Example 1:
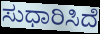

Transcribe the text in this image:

ಸುಧಾರಿಸಿದೆ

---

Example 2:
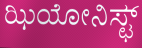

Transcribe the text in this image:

ಝಿಯೋನಿಸ್ಟ್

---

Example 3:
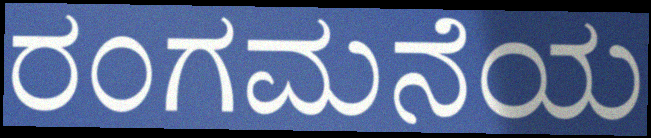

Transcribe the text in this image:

ರಂಗಮನೆಯ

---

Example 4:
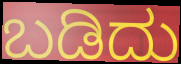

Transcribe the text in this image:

ಬಡಿದು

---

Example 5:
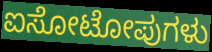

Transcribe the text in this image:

ಐಸೋಟೋಪುಗಳು